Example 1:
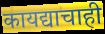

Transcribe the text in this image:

कायद्याचाही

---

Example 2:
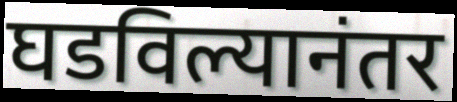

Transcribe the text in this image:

घडविल्यानंतर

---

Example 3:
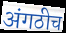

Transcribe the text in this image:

अंगठीच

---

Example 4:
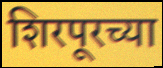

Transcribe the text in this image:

शिरपूरच्या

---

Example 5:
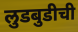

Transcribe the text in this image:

लुडबुडीची